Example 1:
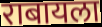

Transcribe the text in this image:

राबायला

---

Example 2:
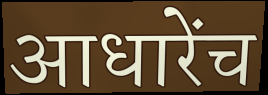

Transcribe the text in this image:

आधारेंच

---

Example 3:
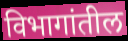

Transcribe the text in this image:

विभागांतील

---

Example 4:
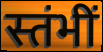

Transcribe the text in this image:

स्तंभीं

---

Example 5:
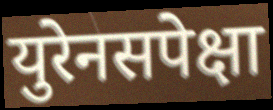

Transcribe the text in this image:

युरेनसपेक्षा